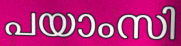
പയാംസി